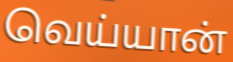
வெய்யான்